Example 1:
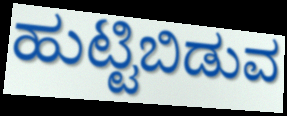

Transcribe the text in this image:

ಹುಟ್ಟಿಬಿಡುವ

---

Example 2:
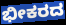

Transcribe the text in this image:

ಭೀಕರದ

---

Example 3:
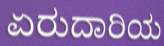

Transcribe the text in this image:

ಏರುದಾರಿಯ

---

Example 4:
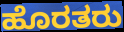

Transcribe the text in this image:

ಹೊರತರು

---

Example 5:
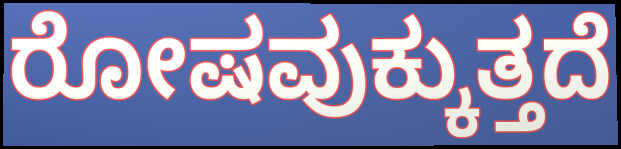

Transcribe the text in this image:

ರೋಷವುಕ್ಕುತ್ತದೆ